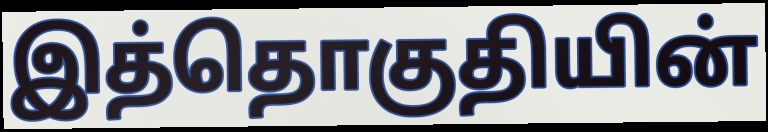
இத்தொகுதியின்